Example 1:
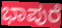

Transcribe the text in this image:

ಭಾಪುರೆ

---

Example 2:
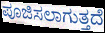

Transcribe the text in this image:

ಪೂಜಿಸಲಾಗುತ್ತದೆ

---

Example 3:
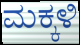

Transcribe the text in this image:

ಮಕ್ಕಳಿ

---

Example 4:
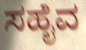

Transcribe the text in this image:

ಸಹೈವ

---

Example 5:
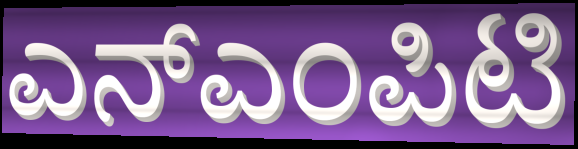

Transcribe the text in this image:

ಎನ್ಎಂಪಿಟಿ